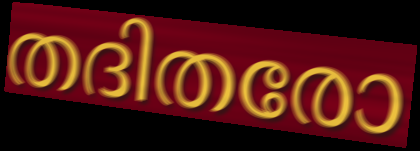
തദിതരോ